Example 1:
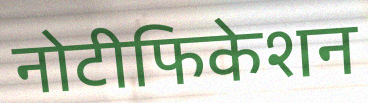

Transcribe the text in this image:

नोटीफिकेशन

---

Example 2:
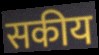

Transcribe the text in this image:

सकीय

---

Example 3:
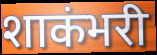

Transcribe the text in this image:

शाकंभरी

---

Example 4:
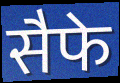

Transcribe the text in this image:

सैफे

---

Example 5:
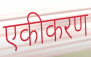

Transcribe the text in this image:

एकीकरण